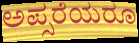
ಅಪ್ಸರೆಯರೂ